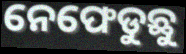
ନେଫେଡୁଛୁ